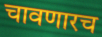
चावणारच